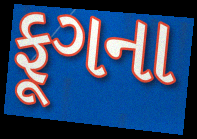
ફૂગના